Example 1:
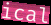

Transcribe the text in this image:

ical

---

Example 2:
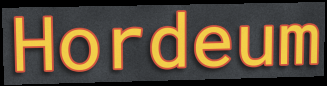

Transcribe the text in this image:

Hordeum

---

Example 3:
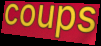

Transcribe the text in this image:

coups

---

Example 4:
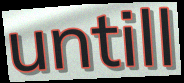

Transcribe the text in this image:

untill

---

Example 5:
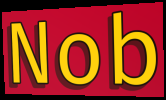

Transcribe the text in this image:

Nob